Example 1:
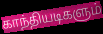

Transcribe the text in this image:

காந்தியடிகளும்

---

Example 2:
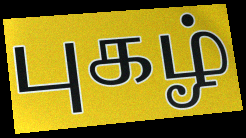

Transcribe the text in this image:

புகழ்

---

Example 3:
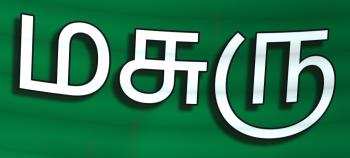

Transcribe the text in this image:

மசுரு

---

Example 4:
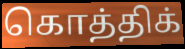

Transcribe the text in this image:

கொத்திக்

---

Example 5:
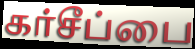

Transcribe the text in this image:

கர்சீப்பை